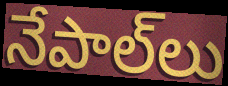
నేపాల్‌లు